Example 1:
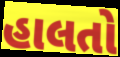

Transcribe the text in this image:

હાલતો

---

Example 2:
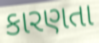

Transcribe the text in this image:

કારણતા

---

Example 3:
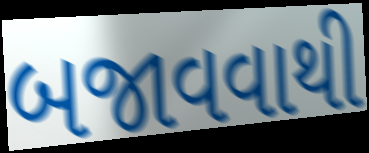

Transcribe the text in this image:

બજાવવાથી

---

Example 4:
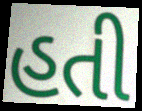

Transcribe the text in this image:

હતી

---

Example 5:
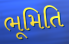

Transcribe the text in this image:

ભૂમિતિ